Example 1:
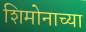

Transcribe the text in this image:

शिमोनाच्या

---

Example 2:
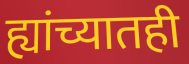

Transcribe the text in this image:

ह्यांच्यातही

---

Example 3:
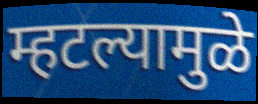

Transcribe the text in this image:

म्हटल्यामुळे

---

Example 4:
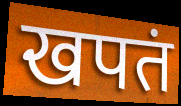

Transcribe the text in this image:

खपतं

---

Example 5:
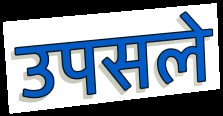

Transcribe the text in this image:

उपसले